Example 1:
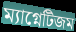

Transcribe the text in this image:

ম্যাগ্নেটিজম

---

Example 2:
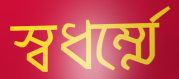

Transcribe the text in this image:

স্বধর্ম্মে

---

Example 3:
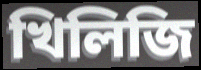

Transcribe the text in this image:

খিলিজি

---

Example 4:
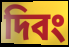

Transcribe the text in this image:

দিবং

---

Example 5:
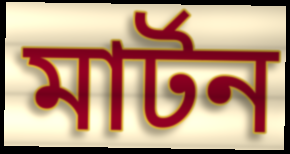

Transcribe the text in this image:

মার্টন